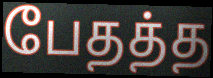
பேதத்த